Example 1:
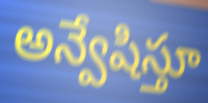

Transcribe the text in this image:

అన్వేషిస్తూ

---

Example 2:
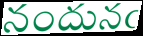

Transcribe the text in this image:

నందునఁ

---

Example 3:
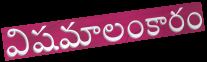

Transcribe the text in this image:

విషమాలంకారం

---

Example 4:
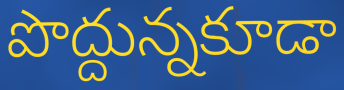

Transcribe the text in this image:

పొద్దున్నకూడా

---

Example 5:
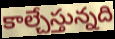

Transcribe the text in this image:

కాల్చేస్తున్నది